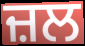
ਜ਼ਲ